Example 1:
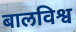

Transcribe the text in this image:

बालविश्व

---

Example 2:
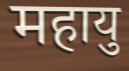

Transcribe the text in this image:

महायु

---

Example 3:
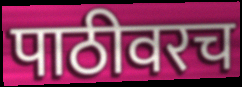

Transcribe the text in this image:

पाठीवरच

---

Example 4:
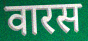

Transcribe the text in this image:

वारस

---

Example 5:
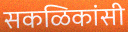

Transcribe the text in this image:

सकळिकांसी